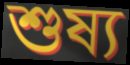
শুষ্য